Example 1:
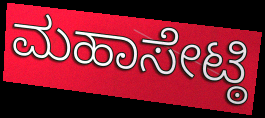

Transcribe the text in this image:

ಮಹಾಸೇಟ್ಠಿ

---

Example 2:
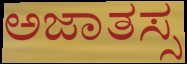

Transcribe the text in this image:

ಅಜಾತಸ್ಸ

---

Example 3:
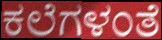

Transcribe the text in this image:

ಕಲೆಗಳಂತೆ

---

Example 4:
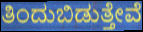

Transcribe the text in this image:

ತಿಂದುಬಿಡುತ್ತೇವೆ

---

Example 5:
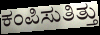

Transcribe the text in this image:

ಕಂಪಿಸುತಿತ್ತು